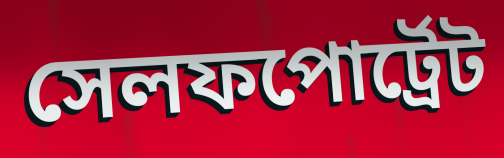
সেলফপোর্ট্রেট